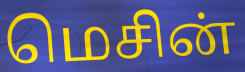
மெசின்